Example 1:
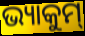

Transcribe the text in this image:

ଭ୍ୟାକୁମ୍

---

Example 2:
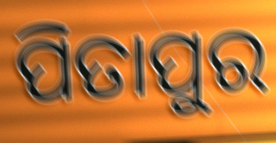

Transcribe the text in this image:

ପିତାପୁର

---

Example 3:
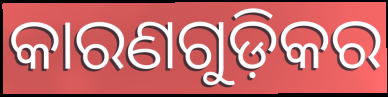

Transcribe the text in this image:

କାରଣଗୁଡ଼ିକର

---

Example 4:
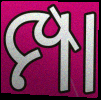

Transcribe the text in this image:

ମ୍ପା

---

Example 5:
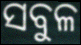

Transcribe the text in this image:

ସବୁଳ